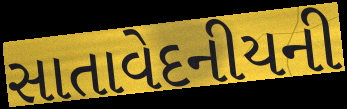
સાતાવેદનીયની